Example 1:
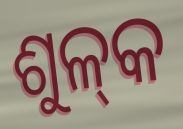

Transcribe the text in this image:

ଶୁଳ୍‌କ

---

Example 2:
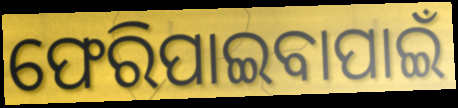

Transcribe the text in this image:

ଫେରିପାଇବାପାଇଁ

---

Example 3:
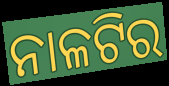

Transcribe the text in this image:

ନାଳଟିର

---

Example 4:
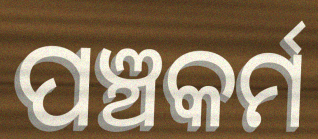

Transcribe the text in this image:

ପଞ୍ଚକର୍ମ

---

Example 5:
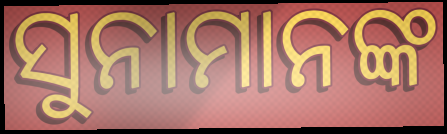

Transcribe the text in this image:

ସୁନାମାନଙ୍କ